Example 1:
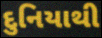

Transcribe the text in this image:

દુનિયાથી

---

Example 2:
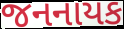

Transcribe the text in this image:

જનનાયક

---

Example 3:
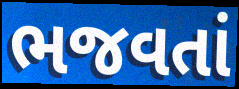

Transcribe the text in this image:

ભજવતાં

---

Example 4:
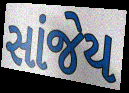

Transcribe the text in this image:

સાંજેય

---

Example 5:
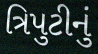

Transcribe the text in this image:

ત્રિપુટીનું